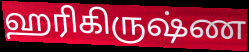
ஹரிகிருஷ்ண